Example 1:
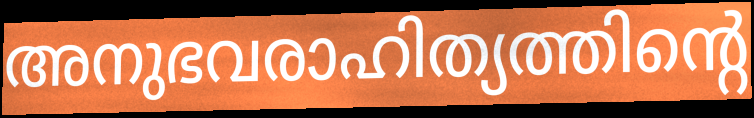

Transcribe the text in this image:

അനുഭവരാഹിത്യത്തിന്റെ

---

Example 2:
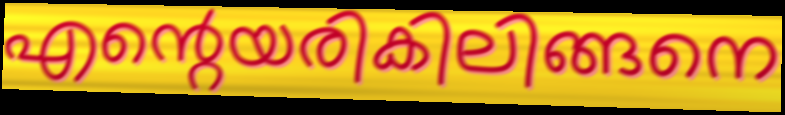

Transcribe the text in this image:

എന്റെയരികിലിങ്ങനെ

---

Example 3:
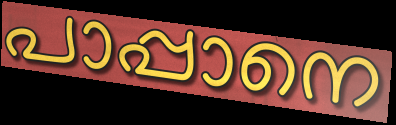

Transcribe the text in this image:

പാപ്പാനെ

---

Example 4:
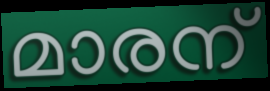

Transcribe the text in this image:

മാരന്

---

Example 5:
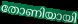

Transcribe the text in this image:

തോണിയായി